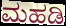
ಮಹಡಿ